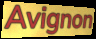
Avignon